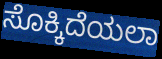
ಸೊಕ್ಕಿದೆಯಲಾ